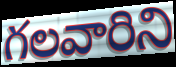
గలవారిని